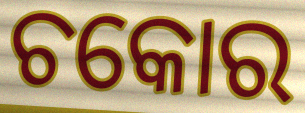
ଚକୋର